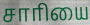
சாரியை